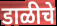
डाळीचे